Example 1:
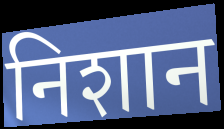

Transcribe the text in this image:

निशान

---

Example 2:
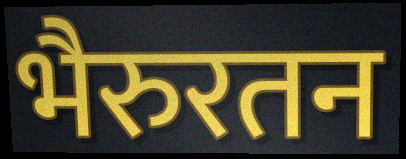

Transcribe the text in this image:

भैरुरतन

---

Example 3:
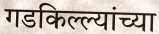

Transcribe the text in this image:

गडकिल्ल्यांच्या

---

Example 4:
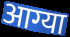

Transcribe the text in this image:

आग्या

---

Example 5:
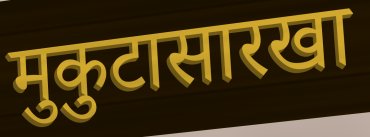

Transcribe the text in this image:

मुकुटासारखा